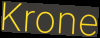
Krone